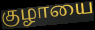
குழாயை